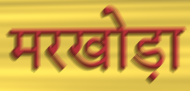
मरखोड़ा